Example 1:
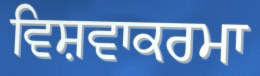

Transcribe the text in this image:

ਵਿਸ਼ਵਾਕਰਮਾ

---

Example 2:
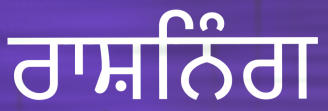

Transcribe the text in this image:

ਰਾਸ਼ਨਿੰਗ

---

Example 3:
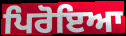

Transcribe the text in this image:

ਪਿਰੋਇਆ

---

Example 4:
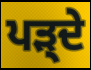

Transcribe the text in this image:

ਪੜ੍ਦੇ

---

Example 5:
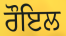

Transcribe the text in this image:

ਰੌਇਲ